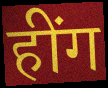
हींग